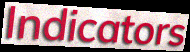
Indicators